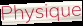
Physique